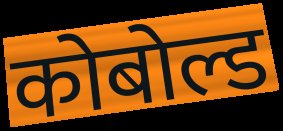
कोबोल्ड